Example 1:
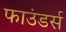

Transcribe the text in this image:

फाउंडर्स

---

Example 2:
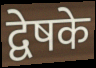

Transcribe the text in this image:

द्वेषके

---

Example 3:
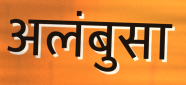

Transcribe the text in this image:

अलंबुसा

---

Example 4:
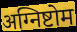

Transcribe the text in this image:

अग्निष्टोम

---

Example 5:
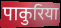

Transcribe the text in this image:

पाकुरिया